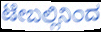
ಟೇಬಲ್ಲಿನಿಂದ